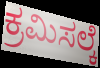
ಕ್ರಮಿಸಲ್ಕೆ